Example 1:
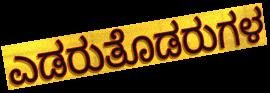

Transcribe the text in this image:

ಎಡರುತೊಡರುಗಳ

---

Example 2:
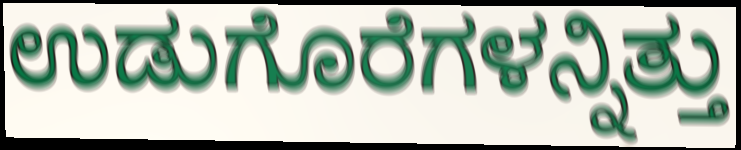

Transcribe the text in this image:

ಉಡುಗೊರೆಗಳನ್ನಿತ್ತು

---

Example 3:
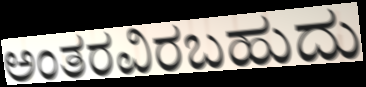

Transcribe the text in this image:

ಅಂತರವಿರಬಹುದು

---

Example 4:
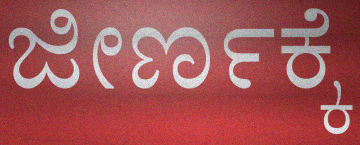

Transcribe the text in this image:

ಜೀರ್ಣಕ್ಕೆ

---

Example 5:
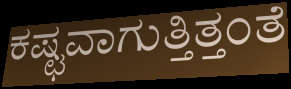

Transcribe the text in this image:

ಕಷ್ಟವಾಗುತ್ತಿತ್ತಂತೆ